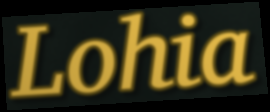
Lohia